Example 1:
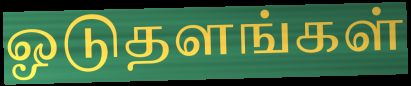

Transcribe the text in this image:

ஓடுதளங்கள்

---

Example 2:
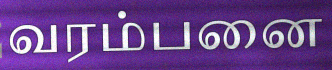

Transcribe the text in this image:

வரம்பனை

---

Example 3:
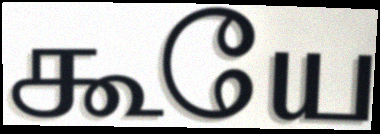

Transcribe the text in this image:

கூயே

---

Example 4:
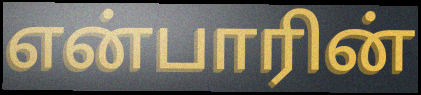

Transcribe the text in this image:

என்பாரின்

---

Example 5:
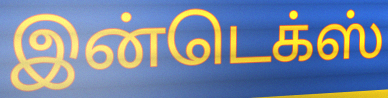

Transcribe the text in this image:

இன்டெக்ஸ்